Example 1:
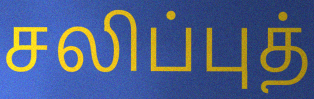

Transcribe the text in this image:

சலிப்புத்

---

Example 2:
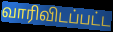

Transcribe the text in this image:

வாரிவிடப்பட்ட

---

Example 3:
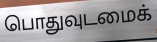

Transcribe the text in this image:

பொதுவுடமைக்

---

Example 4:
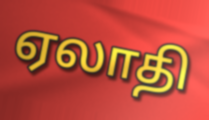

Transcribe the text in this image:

ஏலாதி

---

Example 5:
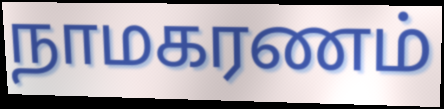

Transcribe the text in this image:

நாமகரணம்